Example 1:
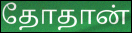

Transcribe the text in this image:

தோதான்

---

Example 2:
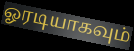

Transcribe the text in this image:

ஓரடியாகவும்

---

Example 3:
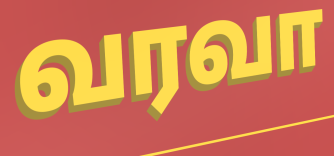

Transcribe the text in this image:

வரவா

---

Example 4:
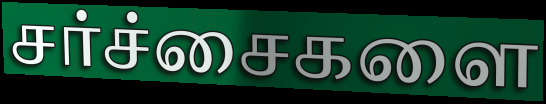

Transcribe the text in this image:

சர்ச்சைகளை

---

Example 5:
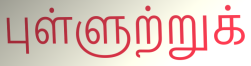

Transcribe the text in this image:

புள்ளுற்றுக்